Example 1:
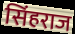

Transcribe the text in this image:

सिंहराज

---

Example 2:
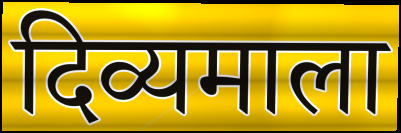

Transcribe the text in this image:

दिव्यमाला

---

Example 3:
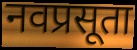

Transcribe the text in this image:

नवप्रसूता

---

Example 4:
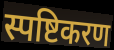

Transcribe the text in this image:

स्पष्टिकरण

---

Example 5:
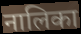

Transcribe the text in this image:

नालिका